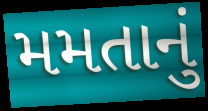
મમતાનું